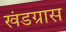
खंडग्रास